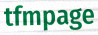
tfmpage